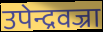
उपेन्द्रवज्रा